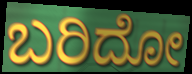
ಬರಿದೋ